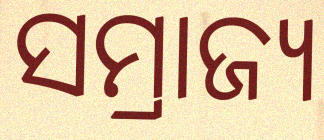
ସମ୍ରାଜ୍ୟ